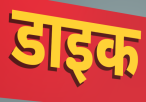
डाइक